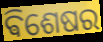
ଵିଶେଷର